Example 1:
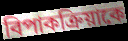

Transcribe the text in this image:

বিপাকক্রিয়াকে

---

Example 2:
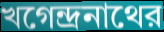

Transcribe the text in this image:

খগেন্দ্রনাথের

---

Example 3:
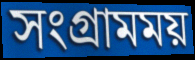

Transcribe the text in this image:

সংগ্রামময়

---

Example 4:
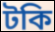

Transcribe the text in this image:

টকি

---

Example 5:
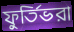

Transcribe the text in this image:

ফুর্তিভরা